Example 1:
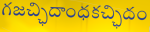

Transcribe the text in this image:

గజచ్ఛిదాంధకచ్ఛిదం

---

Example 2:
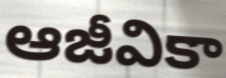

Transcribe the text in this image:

ఆజీవికా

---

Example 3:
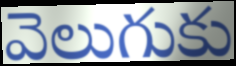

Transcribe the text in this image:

వెలుగుకు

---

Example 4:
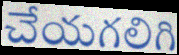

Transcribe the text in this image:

చేయగలిగి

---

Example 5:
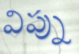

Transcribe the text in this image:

విప్ను